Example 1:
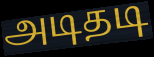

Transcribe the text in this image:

அடிதடி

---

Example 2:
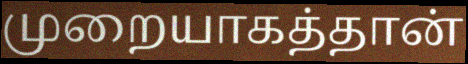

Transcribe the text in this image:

முறையாகத்தான்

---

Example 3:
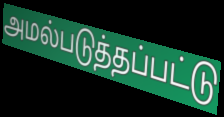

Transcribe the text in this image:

அமல்படுத்தப்பட்டு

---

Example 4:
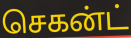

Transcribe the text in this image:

செகன்ட்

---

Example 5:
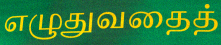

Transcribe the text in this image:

எழுதுவதைத்